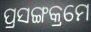
ପ୍ରସଙ୍ଗକ୍ରମେ